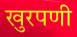
खुरपणी